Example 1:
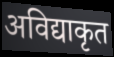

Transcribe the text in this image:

अविद्याकृत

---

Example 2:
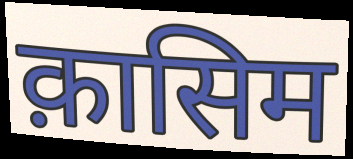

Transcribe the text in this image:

क़ासिम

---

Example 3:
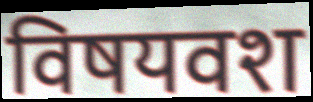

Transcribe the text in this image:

विषयवश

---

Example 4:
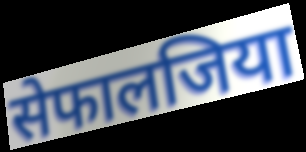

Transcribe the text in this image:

सेफालजिया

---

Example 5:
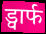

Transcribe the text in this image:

ड्वार्फ